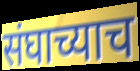
संघाच्याच